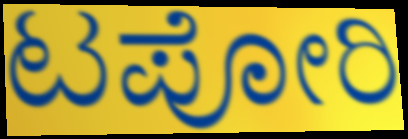
ಟಪೋರಿ